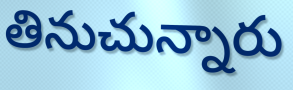
తినుచున్నారు